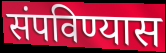
संपविण्यास